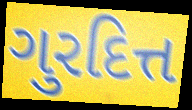
ગુરદિત્ત